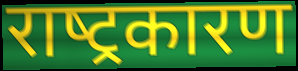
राष्ट्रकारण